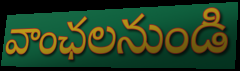
వాంఛలనుండి